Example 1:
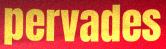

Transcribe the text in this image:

pervades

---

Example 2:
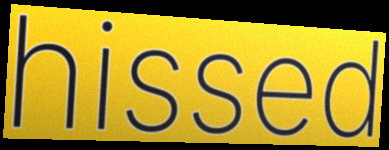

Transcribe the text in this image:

hissed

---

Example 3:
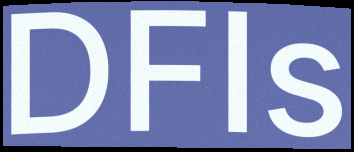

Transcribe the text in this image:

DFIs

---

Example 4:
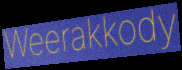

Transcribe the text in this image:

Weerakkody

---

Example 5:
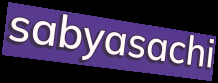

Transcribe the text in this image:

sabyasachi